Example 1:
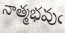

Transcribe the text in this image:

నాత్మభవుఁ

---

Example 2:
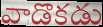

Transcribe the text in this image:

వాడొకడు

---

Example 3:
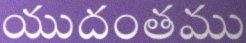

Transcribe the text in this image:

యుదంతము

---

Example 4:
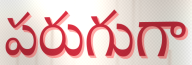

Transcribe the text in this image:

పరుగుగా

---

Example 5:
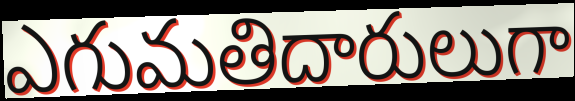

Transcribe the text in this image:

ఎగుమతిదారులుగా